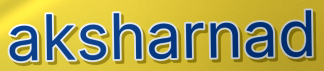
aksharnad